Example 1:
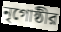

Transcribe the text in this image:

নৃগোষ্ঠীর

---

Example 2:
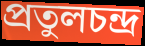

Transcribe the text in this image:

প্রতুলচন্দ্র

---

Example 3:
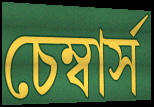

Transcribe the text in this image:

চেম্বার্স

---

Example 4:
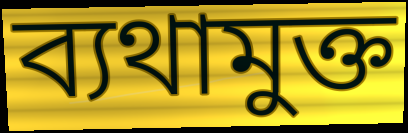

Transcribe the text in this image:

ব্যথামুক্ত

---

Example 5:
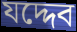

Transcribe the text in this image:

যদ্দেব